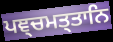
ਪਞ੍ਚਮਤ੍ਤਾਨਿ